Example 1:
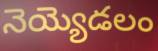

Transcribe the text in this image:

నెయ్యెడలం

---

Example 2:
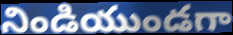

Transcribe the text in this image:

నిండియుండగా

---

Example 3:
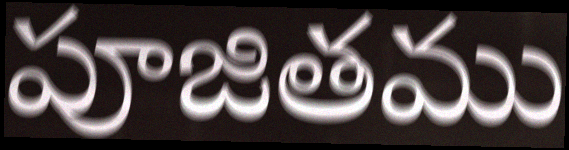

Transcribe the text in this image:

పూజితము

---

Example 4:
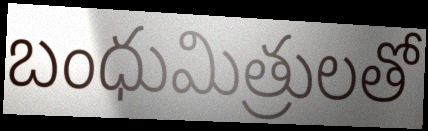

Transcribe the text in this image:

బంధుమిత్రులతో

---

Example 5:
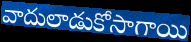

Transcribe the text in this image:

వాదులాడుకోసాగాయి